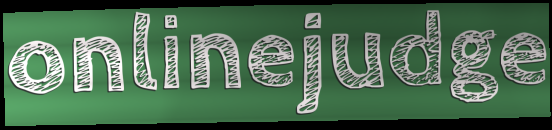
onlinejudge